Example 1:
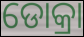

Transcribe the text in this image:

ଡୋକ୍ରା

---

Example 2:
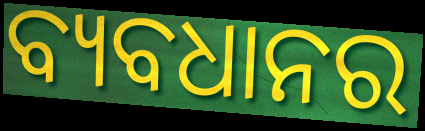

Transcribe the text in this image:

ବ୍ୟବଧାନର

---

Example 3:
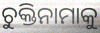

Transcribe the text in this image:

ଚୁକ୍ତିନାମାକୁ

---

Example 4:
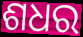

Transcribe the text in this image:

ଶଧର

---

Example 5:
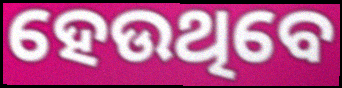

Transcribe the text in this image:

ହେଉଥିବେ